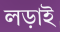
লড়াই